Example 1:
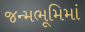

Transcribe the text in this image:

જન્મભૂમિમાં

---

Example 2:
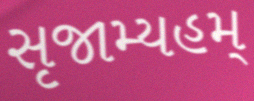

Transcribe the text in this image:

સૃજામ્યહમ્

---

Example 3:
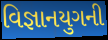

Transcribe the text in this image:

વિજ્ઞાનયુગની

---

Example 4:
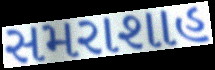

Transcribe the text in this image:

સમરાશાહ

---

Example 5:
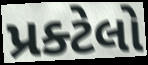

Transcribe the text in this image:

પ્રક્ટેલો